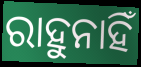
ରାହୁନାହିଁ